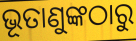
ଭୂତାଣୁଙ୍କଠାରୁ